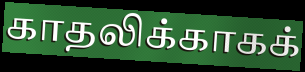
காதலிக்காகக்